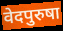
वेदपुरुषा